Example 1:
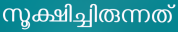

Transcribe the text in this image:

സൂക്ഷിച്ചിരുന്നത്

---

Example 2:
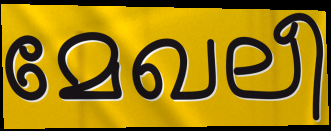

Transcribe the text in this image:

മേഖലീ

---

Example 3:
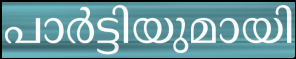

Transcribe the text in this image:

പാർട്ടിയുമായി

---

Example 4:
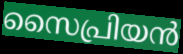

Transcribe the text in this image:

സൈപ്രിയൻ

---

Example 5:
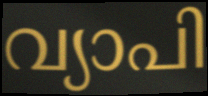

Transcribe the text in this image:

വ്യാപി